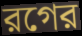
রগের